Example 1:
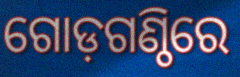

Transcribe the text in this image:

ଗୋଡ଼ଗଣ୍ଠିରେ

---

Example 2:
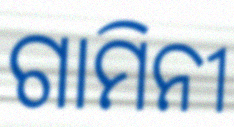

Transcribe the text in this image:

ଗାମିନୀ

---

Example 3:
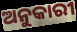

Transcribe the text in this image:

ଅନୁକାରୀ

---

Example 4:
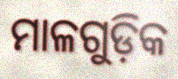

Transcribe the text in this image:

ମାଳଗୁଡ଼ିକ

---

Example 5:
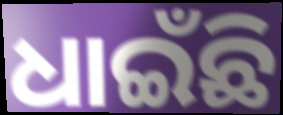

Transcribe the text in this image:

ଧାଇଁଛି